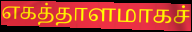
எகத்தாளமாகச்